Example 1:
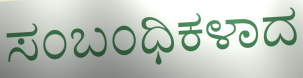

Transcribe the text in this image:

ಸಂಬಂಧಿಕಳಾದ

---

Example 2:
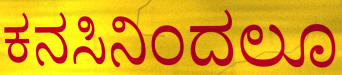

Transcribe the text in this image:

ಕನಸಿನಿಂದಲೂ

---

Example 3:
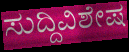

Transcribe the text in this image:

ಸುದ್ದಿವಿಶೇಷ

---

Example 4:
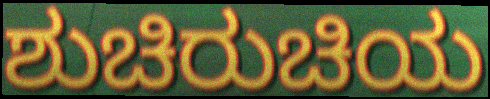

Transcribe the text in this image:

ಶುಚಿರುಚಿಯ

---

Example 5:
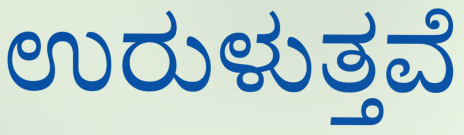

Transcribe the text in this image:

ಉರುಳುತ್ತವೆ